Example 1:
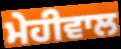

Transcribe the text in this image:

ਮੇਹੀਵਾਲ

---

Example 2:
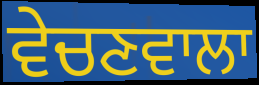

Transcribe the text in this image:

ਵੇਚਣਵਾਲਾ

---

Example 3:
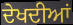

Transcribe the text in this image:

ਦੇਖਦੀਆਂ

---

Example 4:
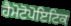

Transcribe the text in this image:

ਹੈਮੋਟੋਪੋਇਟਿਕ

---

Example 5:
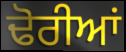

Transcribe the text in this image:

ਢੋਰੀਆਂ